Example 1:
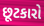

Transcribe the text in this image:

છૂટકારો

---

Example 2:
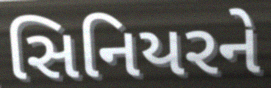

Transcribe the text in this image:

સિનિયરને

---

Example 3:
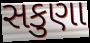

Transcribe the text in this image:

સકુણા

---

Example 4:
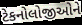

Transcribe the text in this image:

ટેકનોલોજીઓને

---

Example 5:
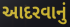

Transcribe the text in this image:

આદરવાનું